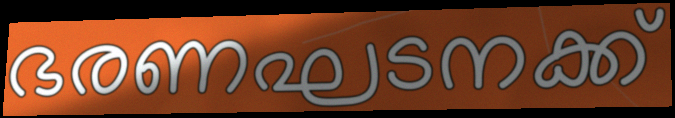
ഭരണഘടനക്ക്